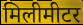
मिलीमीटर